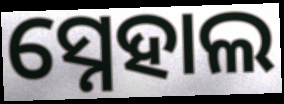
ସ୍ନେହାଲ